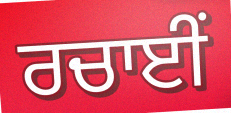
ਰਚਾਈਂ